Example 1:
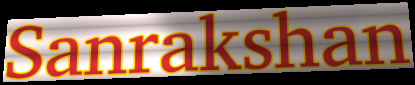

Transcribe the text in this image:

Sanrakshan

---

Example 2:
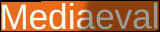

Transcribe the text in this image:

Mediaeval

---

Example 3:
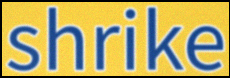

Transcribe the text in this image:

shrike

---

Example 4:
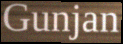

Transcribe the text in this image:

Gunjan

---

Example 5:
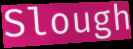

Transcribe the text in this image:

Slough